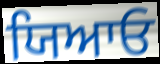
ਯਿਆਓ